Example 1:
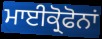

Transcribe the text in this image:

ਮਾਈਕ੍ਰੋਫੋਨਾਂ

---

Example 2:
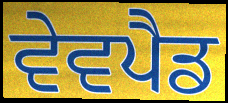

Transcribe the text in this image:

ਵੇਵਪੈਡ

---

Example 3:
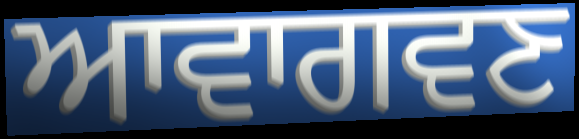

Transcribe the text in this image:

ਆਵਾਗਵਣ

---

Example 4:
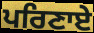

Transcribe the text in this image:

ਪਰਿਣਾਏ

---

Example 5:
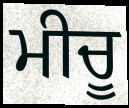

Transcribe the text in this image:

ਮੀਚੂ